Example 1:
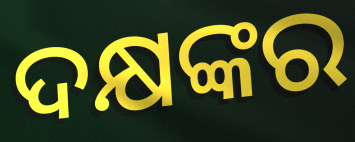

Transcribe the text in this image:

ଦକ୍ଷଙ୍କର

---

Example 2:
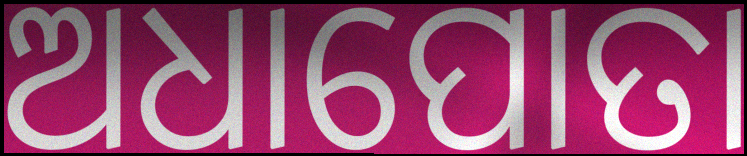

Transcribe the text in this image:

ଅଧାପୋତା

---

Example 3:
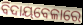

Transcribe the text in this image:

ବିଦାୟବେଳାରେ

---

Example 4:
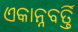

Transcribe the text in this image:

ଏକାନ୍ନବର୍ତ୍ତି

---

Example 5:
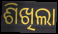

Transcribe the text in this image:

ଶିଖିଲା